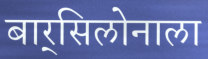
बार्सिलोनाला